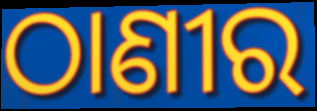
ଠାଣୀର